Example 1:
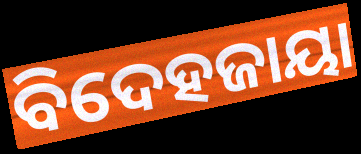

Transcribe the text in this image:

ବିଦେହଜାୟା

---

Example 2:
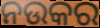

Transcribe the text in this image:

ନଉକର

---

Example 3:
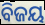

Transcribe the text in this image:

ବିଜୟ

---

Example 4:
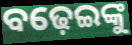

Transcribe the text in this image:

ବଢ଼େଇଙ୍କୁ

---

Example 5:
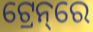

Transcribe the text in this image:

ଟ୍ରେନ୍‌ରେ